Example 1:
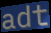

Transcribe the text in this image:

adt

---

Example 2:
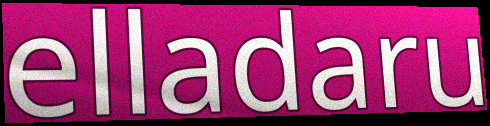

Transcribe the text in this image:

elladaru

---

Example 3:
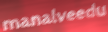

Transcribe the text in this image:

manalveedu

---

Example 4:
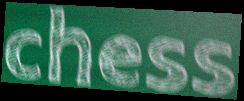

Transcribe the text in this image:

chess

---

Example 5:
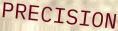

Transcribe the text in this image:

PRECISION